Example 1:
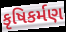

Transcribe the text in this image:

કૃષિકર્મણ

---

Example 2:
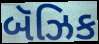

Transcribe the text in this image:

બૅઝિક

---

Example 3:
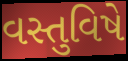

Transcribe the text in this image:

વસ્તુવિષે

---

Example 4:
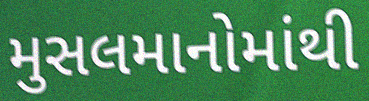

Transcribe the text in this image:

મુસલમાનોમાંથી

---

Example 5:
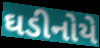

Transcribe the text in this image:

ઘડીનોયે